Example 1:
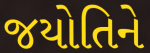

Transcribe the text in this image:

જયોતિને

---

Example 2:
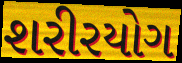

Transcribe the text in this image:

શરીરયોગ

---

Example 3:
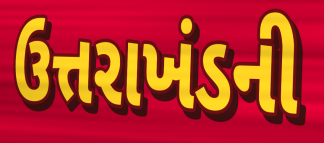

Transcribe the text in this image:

ઉત્તરાખંડની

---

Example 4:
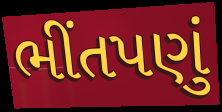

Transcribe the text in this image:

ભીંતપણું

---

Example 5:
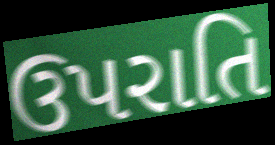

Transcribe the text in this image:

ઉપરાતિ